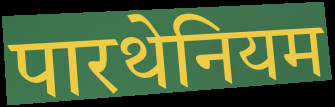
पारथेनियम